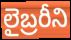
లైబ్రరీని